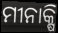
ମୀନାକ୍ଷି